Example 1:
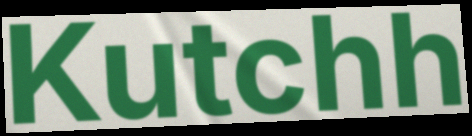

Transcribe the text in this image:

Kutchh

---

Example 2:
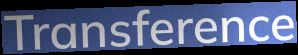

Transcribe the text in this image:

Transference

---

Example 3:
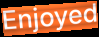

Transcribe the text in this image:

Enjoyed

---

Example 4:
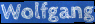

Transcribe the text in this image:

Wolfgang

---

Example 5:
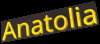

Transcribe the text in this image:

Anatolia